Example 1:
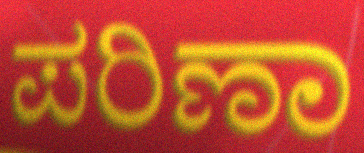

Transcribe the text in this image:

ಪರಿಣಾ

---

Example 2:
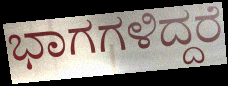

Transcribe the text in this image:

ಭಾಗಗಳಿದ್ದರೆ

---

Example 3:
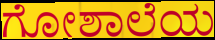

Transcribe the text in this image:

ಗೋಶಾಲೆಯ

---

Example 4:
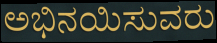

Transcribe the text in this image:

ಅಭಿನಯಿಸುವರು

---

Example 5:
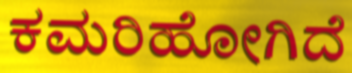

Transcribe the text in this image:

ಕಮರಿಹೋಗಿದೆ